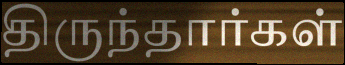
திருந்தார்கள்